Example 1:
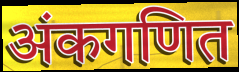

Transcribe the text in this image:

अंकगणित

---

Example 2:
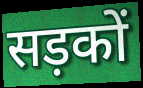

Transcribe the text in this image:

सड़कों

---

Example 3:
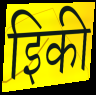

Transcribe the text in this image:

इिकी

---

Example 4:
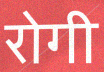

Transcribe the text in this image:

रोगी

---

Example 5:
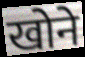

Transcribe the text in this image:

खोने